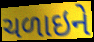
ચળાઇને